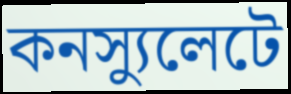
কনস্যুলেটে